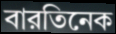
বারতিনেক